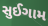
સુઈગામ